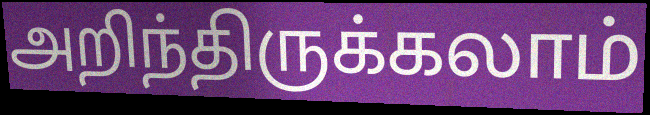
அறிந்திருக்கலாம்